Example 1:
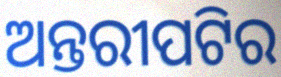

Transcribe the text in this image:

ଅନ୍ତରୀପଟିର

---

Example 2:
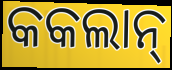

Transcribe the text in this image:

କକଲାନ୍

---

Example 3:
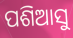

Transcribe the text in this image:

ପଶିଆସୁ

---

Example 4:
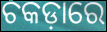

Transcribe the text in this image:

ଚକଡ଼ାରେ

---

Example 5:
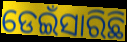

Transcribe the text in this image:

ଡେଇଁସାରିଛି